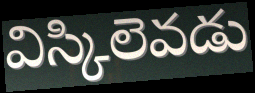
విస్కిలెవడు